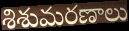
శిశుమరణాలు